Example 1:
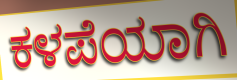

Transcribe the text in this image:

ಕಳಪೆಯಾಗಿ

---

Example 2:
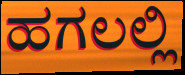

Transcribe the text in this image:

ಹಗಲಲ್ಲಿ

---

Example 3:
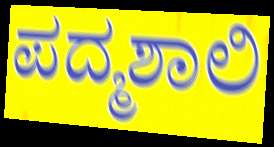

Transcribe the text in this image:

ಪದ್ಮಶಾಲಿ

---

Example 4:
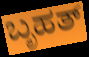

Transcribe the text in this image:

ಬೃಹತ್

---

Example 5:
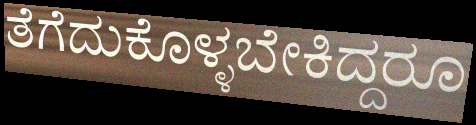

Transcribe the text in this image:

ತೆಗೆದುಕೊಳ್ಳಬೇಕಿದ್ದರೂ